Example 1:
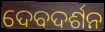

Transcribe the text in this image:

ଦେବଦର୍ଶନ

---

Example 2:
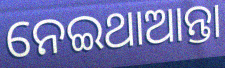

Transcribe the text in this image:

ନେଇଥାଆନ୍ତା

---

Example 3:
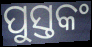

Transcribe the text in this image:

ପୁସ୍ତକଂ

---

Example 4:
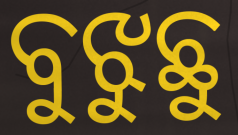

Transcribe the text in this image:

ବୁଝୁଛୁ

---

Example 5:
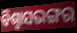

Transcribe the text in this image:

ବିଶ୍ଵାସଭଙ୍ଗର